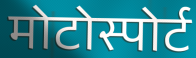
मोटोस्पोर्ट